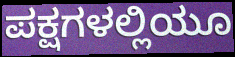
ಪಕ್ಷಗಳಲ್ಲಿಯೂ